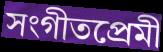
সংগীতপ্রেমী